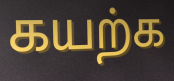
கயற்க